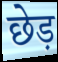
छेड़